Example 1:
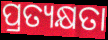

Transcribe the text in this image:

ପ୍ରତ୍ୟକ୍ଷତା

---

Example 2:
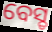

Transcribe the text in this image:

ବେସ୍ଡ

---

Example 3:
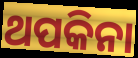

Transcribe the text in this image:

ଥପକିନା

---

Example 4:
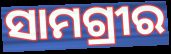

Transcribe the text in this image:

ସାମଗ୍ରୀର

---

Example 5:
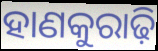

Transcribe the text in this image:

ହାଣକୁରାଢ଼ି